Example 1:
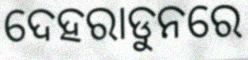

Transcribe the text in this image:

ଦେହରାଡୁନରେ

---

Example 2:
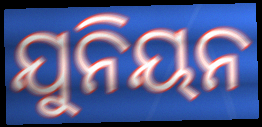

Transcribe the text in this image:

ଯୁନିୟନ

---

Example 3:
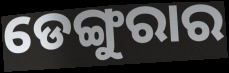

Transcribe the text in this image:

ଡେଙ୍ଗୁରାର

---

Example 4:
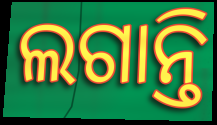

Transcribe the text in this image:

ଲଗାନ୍ତି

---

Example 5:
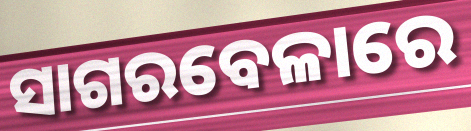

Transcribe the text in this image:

ସାଗରବେଳାରେ